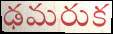
ఢమరుక